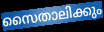
സൈതാലിക്കും